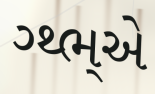
ગ્થ્ભ્એ